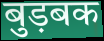
बुड़बक